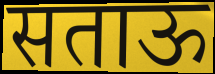
सताऊ